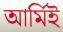
আর্মিই